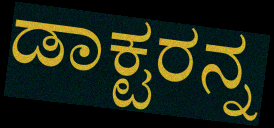
ಡಾಕ್ಟರನ್ನ